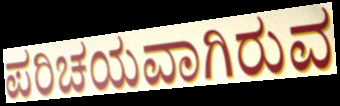
ಪರಿಚಯವಾಗಿರುವ